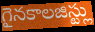
గైనకాలజిస్ట్లు